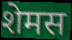
शेमस